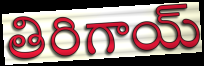
తిరిగాయ్